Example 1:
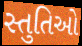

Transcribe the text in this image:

સ્તુતિઓ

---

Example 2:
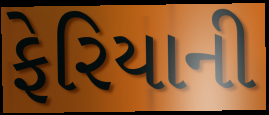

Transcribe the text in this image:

ફેરિયાની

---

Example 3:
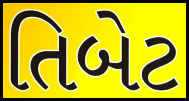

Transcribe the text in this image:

તિબેટ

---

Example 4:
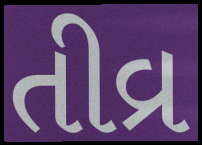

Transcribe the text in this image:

તીવ્ર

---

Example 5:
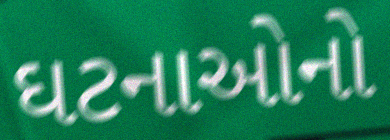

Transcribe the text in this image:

ઘટનાઓનો